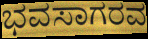
ಭವಸಾಗರವ